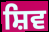
ਸ਼ਿਵ